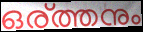
ഒര്ത്തനും